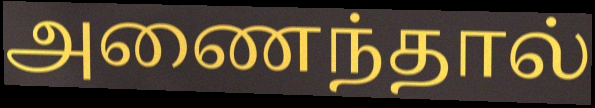
அணைந்தால்